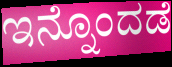
ಇನ್ನೊಂದಡೆ